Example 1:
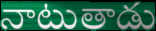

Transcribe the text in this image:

నాటుతాడు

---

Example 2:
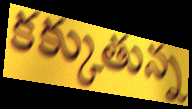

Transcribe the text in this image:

కక్కుతున్న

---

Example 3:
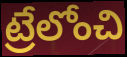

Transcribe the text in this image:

ట్రేలోంచి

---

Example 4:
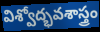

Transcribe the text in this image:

విశ్వోద్భవశాస్త్రం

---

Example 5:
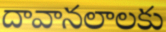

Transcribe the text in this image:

దావానలాలకు